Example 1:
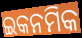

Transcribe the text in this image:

ଇକନମିକ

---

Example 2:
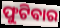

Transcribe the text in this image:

ଫୁଟିବାର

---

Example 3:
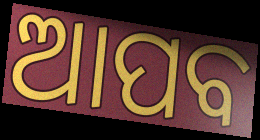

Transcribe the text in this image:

ଆପବ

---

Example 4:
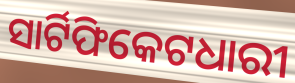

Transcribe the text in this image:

ସାର୍ଟିଫିକେଟଧାରୀ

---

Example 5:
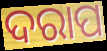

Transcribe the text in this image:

ଦରାପ